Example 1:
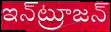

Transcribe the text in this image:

ఇన్‌ట్రూజన్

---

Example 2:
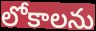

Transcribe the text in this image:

లోకాలను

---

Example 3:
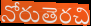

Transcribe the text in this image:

నోరుతెరచి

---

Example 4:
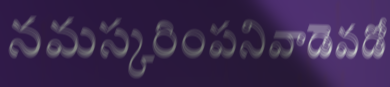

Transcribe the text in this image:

నమస్కరింపనివాడెవడో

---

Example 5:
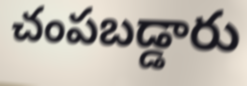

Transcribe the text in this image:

చంపబడ్డారు